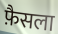
फ़ैसला